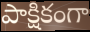
పాక్షికంగా